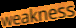
weakness